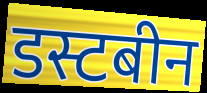
डस्टबीन